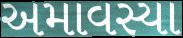
અમાવસ્યા